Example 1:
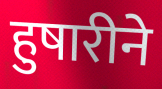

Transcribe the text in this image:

हुषारीने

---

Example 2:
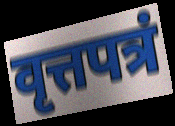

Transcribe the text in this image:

वृत्तपत्रं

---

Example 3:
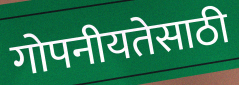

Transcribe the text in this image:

गोपनीयतेसाठी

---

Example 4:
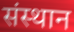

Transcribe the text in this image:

संस्थान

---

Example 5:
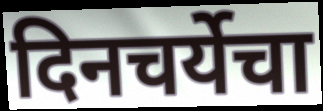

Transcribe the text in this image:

दिनचर्येचा